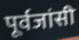
पूर्वजांसी